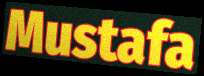
Mustafa